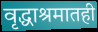
वृद्धाश्रमातही